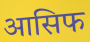
आसिफ